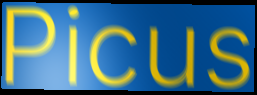
Picus